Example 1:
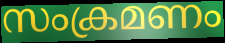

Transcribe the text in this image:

സംക്രമണം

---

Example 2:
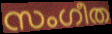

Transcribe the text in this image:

സംഗീത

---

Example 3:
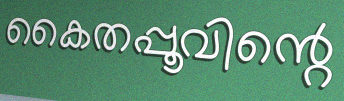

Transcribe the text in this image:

കൈതപ്പൂവിന്റെ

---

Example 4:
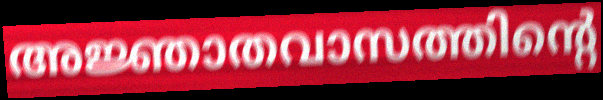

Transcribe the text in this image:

അജ്ഞാതവാസത്തിന്റെ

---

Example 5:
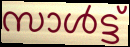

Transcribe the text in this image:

സാൾട്ട്